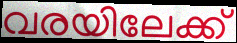
വരയിലേക്ക്